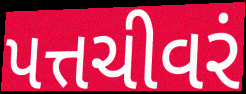
પત્તચીવરં